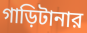
গাড়িটানার